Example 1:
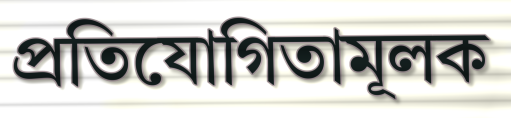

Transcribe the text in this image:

প্রতিযোগিতামূলক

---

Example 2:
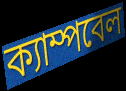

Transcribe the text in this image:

ক্যাম্পবেল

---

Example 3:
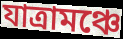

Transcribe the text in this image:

যাত্রামঞ্চে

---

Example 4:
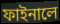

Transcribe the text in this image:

ফাইনালে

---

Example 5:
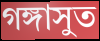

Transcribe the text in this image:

গঙ্গাসুত